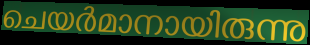
ചെയർമാനായിരുന്നു